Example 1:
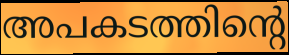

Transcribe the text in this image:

അപകടത്തിന്റെ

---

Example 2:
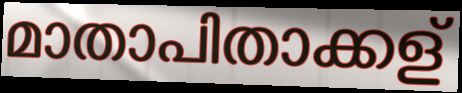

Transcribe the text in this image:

മാതാപിതാക്കള്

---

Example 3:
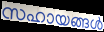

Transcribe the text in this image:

സഹായങ്ങൾ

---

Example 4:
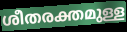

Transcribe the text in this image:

ശീതരക്തമുള്ള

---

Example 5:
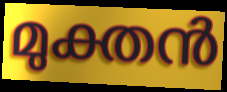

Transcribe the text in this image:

മുക്തൻ